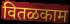
वितळकाम